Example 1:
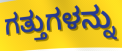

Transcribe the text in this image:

ಗತ್ತುಗಳನ್ನು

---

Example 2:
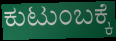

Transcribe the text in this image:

ಕುಟುಂಬಕ್ಕೆ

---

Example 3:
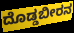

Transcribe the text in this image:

ದೊಡ್ಡಬೀರನ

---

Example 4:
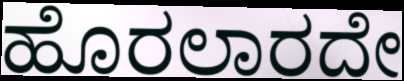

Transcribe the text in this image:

ಹೊರಲಾರದೇ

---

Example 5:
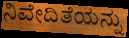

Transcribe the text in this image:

ನಿವೇದಿತೆಯನ್ನು